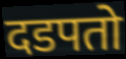
दडपतो